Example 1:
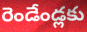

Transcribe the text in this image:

రెండేండ్లకు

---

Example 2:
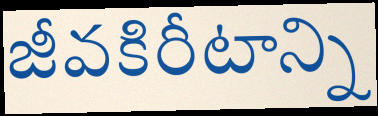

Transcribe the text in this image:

జీవకిరీటాన్ని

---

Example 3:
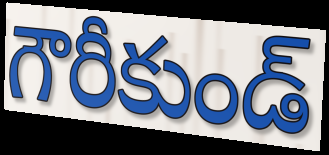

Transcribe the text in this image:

గౌరీకుండ్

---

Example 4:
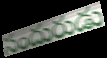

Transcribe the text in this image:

సందురుడు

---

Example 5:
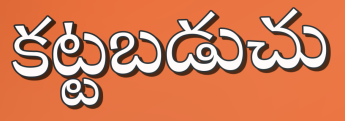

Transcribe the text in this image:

కట్టబడుచు